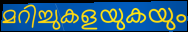
മറിച്ചുകളയുകയും